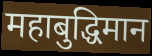
महाबुद्धिमान